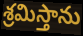
శ్రమిస్తాను